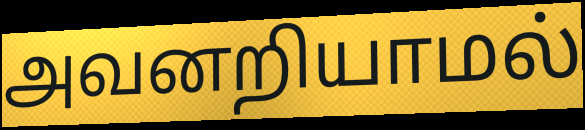
அவனறியாமல்